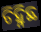
ଚିହ୍ନିଛ